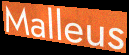
Malleus